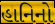
હાનિનો